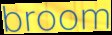
broom